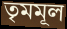
তৃমমূল